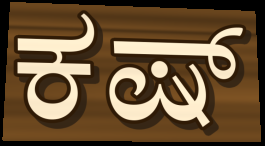
ಕಷ್